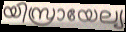
യിസ്രായേല്യ